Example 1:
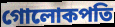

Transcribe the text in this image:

গোলোকপতি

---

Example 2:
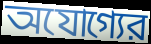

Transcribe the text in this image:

অযোগ্যের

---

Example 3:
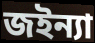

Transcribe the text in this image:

জইন্যা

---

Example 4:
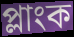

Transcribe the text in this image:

প্লাংক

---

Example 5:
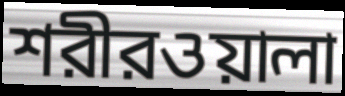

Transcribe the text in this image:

শরীরওয়ালা